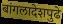
बांगलादेशपुढे